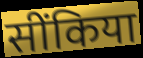
सींकिया